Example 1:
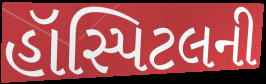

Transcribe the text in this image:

હૉસ્પિટલની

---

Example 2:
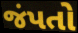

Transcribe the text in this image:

જંપતો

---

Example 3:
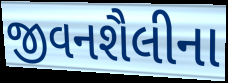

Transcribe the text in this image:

જીવનશૈલીના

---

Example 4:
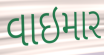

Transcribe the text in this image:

વાઇમાર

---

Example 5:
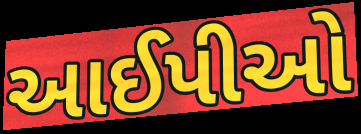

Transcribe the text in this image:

આઈપીઓ